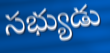
సభ్యుడు